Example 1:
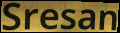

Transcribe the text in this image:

Sresan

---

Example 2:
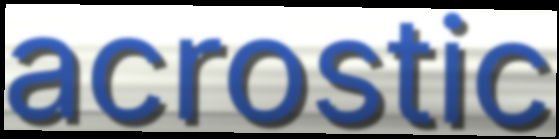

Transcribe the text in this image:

acrostic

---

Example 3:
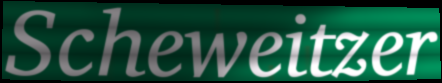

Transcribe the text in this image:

Scheweitzer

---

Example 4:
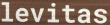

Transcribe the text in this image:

levitas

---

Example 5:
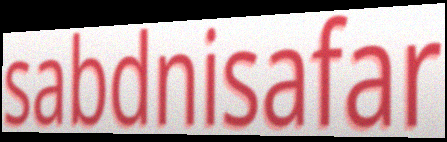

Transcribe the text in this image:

sabdnisafar